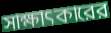
সাক্ষাৎকারের